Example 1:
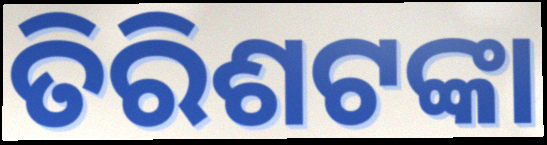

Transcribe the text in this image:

ତିରିଶଟଙ୍କା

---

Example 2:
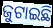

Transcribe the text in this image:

ଜୁଟାଇଛି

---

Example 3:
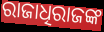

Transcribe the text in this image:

ରାଜାଧିରାଜଙ୍କ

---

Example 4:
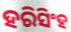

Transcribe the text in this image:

ହରିସିଂହ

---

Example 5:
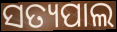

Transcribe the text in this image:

ସତ୍ୟପାଲ